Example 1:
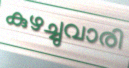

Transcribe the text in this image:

കുഴച്ചുവാരി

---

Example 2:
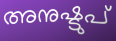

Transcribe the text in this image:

അനുഷ്ടുപ്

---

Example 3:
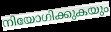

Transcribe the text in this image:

നിയോഗിക്കുകയും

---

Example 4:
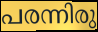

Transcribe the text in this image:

പരന്നിരു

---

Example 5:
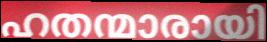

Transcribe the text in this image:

ഹതന്മാരായി